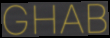
GHAB